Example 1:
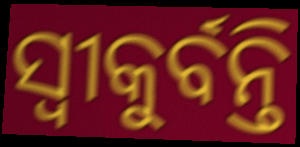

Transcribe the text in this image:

ସ୍ଵୀକୁର୍ବନ୍ତି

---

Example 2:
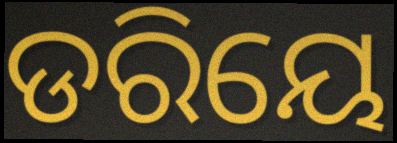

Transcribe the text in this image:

ଡରିୟେ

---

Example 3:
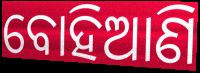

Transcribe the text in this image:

ବୋହିଆଣି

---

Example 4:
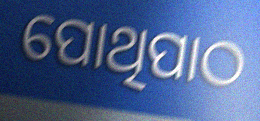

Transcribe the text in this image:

ପୋଥିପାଠ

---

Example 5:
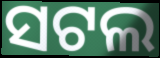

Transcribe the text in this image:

ସଟଲ